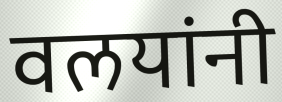
वलयांनी